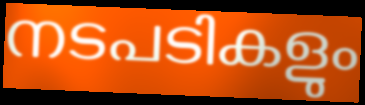
നടപടികളും